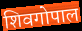
शिवगोपाल